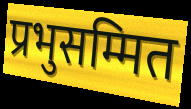
प्रभुसम्मित